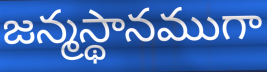
జన్మస్థానముగా